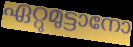
ഏറ്റുമുട്ടാനോ